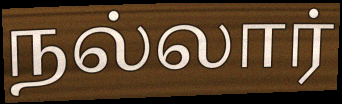
நல்லார்